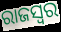
ରାଜସ୍ୱର